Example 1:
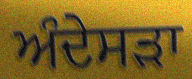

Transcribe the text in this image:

ਅੰਦੇਸੜਾ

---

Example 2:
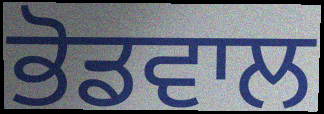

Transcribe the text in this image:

ਭੋਡਵਾਲ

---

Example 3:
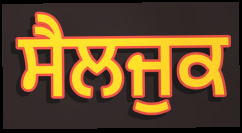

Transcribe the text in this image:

ਸੈਲਜੁਕ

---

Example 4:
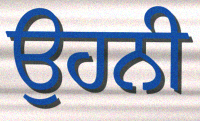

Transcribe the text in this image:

ਉਹਨੀ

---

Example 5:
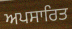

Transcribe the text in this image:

ਅਪਸਾਰਿਤ